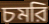
চমরি